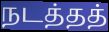
நடத்தத்